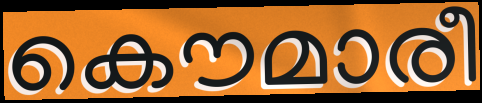
കൌമാരീ